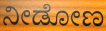
ನೀಡೋಣ